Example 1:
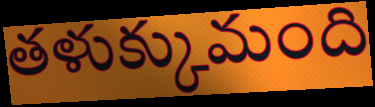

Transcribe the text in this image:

తళుక్కుమంది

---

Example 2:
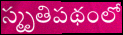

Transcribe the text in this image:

స్మృతిపథంలో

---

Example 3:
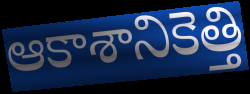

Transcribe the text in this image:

ఆకాశానికెత్తి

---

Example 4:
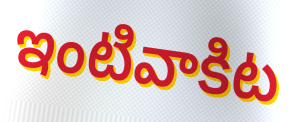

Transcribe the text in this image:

ఇంటివాకిట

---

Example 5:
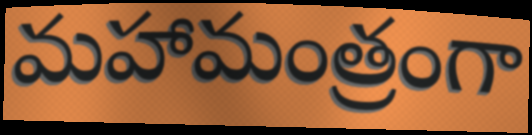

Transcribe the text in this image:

మహామంత్రంగా